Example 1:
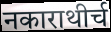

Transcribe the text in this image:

नकाराथीर्च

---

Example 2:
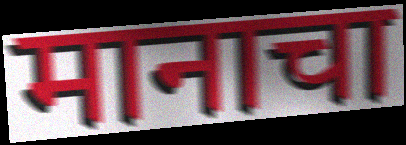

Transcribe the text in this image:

मानाचा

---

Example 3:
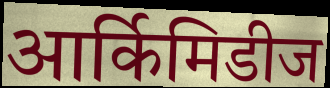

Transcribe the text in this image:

आर्किमिडीज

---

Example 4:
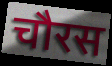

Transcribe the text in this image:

चौरस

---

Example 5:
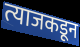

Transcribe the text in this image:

त्याजकडून